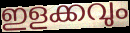
ഇളക്കവും